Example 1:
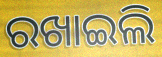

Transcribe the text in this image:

ରଖାଇଲି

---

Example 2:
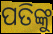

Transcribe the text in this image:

ପତିଙ୍କୁ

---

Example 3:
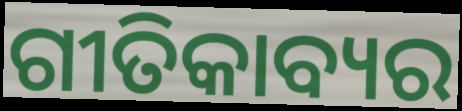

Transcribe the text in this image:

ଗୀତିକାବ୍ୟର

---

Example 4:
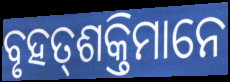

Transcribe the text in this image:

ବୃହତ୍‌ଶକ୍ତିମାନେ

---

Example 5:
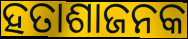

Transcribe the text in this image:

ହତାଶାଜନକ